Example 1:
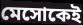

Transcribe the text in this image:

মেসোকেই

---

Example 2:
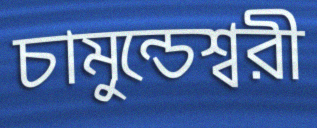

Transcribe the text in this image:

চামুন্ডেশ্বরী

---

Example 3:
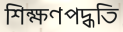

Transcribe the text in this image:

শিক্ষণপদ্ধতি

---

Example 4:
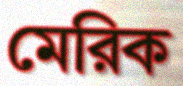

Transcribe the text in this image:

মেরিক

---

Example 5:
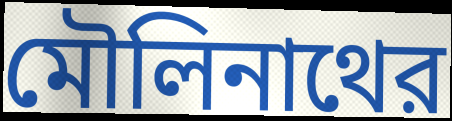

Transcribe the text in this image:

মৌলিনাথের